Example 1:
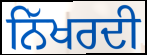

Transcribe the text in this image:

ਨਿੱਖਰਦੀ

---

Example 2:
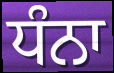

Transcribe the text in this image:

ਧੰਨਾ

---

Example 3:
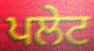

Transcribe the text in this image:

ਪਲੇਟ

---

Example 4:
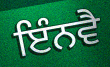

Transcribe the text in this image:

ਇੰਨਵੈ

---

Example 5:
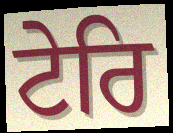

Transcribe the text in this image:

ਟੇਰਿ